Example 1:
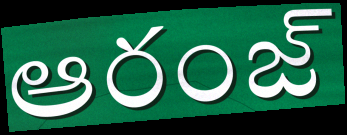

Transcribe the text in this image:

ఆరంజ్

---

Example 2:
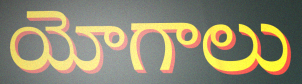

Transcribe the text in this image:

యోగాలు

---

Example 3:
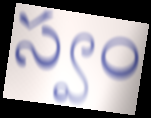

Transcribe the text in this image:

స్వం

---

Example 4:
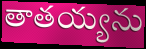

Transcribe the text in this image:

తాతయ్యను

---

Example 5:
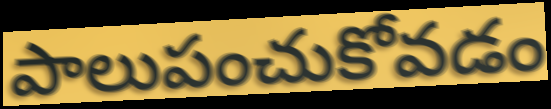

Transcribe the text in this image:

పాలుపంచుకోవడం